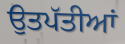
ਉਤਪੱਤੀਆਂ